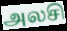
அலசி